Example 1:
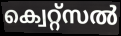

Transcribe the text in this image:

ക്വെറ്റ്സൽ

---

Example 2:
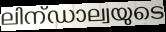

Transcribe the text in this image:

ലിന്ഡാല്വയുടെ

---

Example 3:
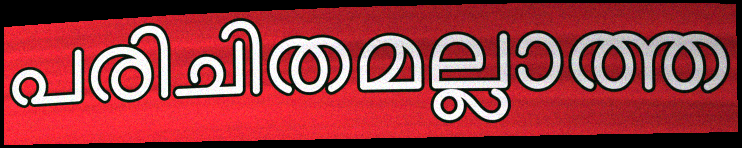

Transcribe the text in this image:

പരിചിതമല്ലാത്ത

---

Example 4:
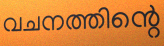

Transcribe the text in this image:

വചനത്തിന്റെ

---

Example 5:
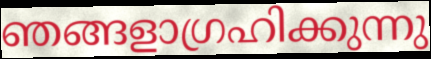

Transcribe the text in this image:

ഞങ്ങളാഗ്രഹിക്കുന്നു